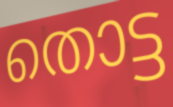
തൊട്ട